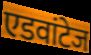
एडवांटेज